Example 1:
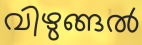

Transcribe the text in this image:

വിഴുങ്ങൽ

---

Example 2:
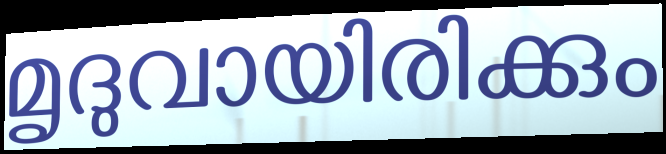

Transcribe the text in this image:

മൃദുവായിരിക്കും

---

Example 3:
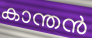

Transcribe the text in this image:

കാന്തൻ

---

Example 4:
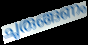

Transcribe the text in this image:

ചുരുങ്ങണം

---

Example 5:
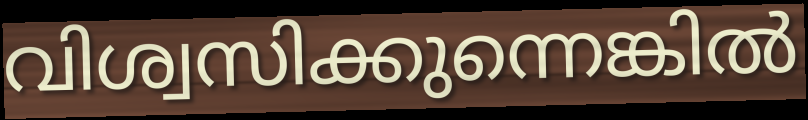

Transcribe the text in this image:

വിശ്വസിക്കുന്നെങ്കിൽ